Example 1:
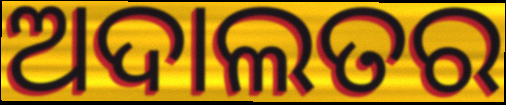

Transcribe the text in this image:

ଅଦାଲତର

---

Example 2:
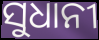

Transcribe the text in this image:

ସୁଧାନୀ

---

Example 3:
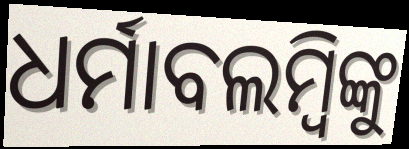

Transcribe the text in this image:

ଧର୍ମାବଲମ୍ବିଙ୍କୁ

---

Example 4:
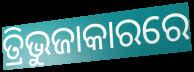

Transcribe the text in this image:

ତ୍ରିଭୁଜାକାରରେ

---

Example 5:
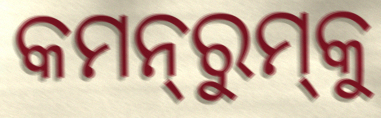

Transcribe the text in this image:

କମନ୍‍ରୁମ୍‍କୁ